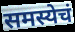
समस्येचं